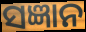
ସଜ୍ଞାନ